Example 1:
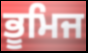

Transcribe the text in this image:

ਭੂਮਿਜ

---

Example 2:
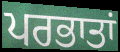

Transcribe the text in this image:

ਪਰਭਾਤਾਂ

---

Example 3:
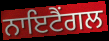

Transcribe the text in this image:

ਨਾਇਟੈਂਗਲ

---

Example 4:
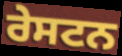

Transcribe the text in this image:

ਰੇਸਟਨ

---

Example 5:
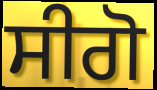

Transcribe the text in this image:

ਸੀਗੋ